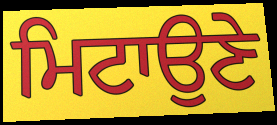
ਮਿਟਾਉਣੇ